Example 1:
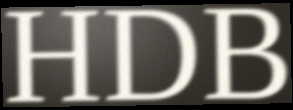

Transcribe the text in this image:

HDB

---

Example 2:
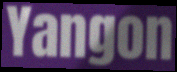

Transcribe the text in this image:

Yangon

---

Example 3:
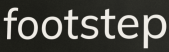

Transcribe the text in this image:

footstep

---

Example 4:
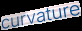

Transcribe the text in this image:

curvature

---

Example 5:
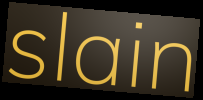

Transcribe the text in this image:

slain